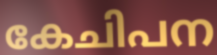
കേചിപന